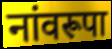
नांवरूपा